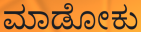
ಮಾಡೋಕು